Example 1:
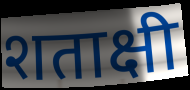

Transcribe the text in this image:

शताक्षी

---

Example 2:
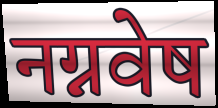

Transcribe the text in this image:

नग्नवेष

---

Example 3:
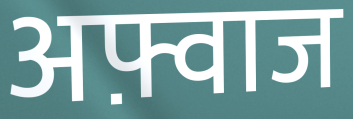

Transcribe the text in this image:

अफ़्वाज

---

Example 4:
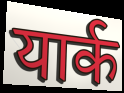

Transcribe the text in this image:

यार्क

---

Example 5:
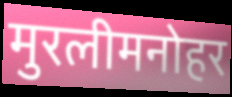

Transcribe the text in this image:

मुरलीमनोहर